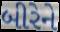
બીરેને